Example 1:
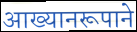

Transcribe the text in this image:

आख्यानरूपाने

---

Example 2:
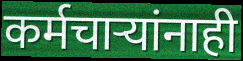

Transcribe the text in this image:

कर्मचार्‍यांनाही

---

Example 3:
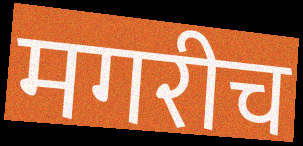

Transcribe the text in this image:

मगरीच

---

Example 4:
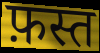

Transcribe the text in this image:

फ़स्त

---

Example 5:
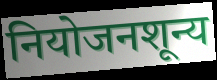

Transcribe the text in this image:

नियोजनशून्य